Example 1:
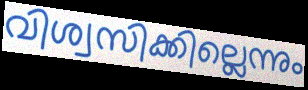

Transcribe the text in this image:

വിശ്വസിക്കില്ലെന്നും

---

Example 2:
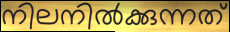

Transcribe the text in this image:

നിലനിൽക്കുന്നത്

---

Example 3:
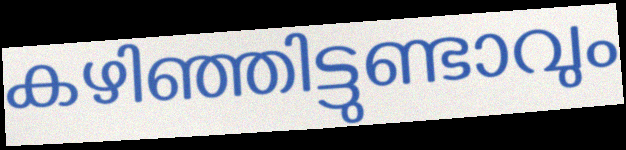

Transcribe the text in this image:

കഴിഞ്ഞിട്ടുണ്ടാവും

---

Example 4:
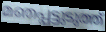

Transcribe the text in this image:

മഞപ്പട്ടുടുത്ത്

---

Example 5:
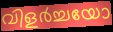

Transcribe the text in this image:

വിളർച്ചയോ